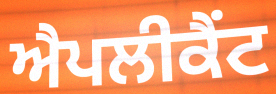
ਐਪਲੀਕੈਂਟ